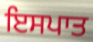
ਇਸਪਾਤ